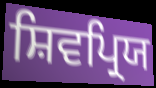
ਸ਼ਿਵਪ੍ਰਿਯ